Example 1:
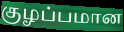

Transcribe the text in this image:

குழப்பமான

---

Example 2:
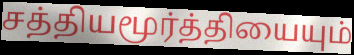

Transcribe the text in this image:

சத்தியமூர்த்தியையும்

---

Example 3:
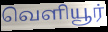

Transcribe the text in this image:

வெளியூர்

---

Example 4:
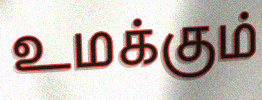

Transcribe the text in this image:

உமக்கும்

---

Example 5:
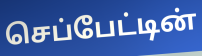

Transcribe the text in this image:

செப்பேட்டின்